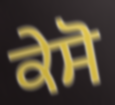
ਕੇਸੋ